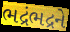
ભદ્રંભદ્રને